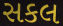
સકલ